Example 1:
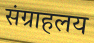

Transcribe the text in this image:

संग्राहलय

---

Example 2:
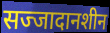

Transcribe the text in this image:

सज्जादानशीन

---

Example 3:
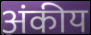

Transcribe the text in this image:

अंकीय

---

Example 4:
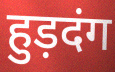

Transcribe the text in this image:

हुड़दंग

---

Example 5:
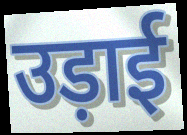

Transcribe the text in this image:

उड़ाई